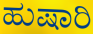
ಹುಷಾರಿ